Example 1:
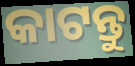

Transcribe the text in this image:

କାଟନ୍ତୁ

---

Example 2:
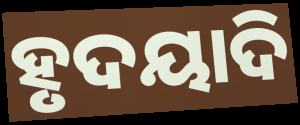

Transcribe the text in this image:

ହୃଦୟାଦି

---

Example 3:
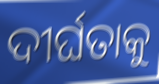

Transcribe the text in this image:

ଦୀର୍ଘତାକୁ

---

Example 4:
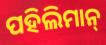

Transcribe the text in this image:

ପହିଲିମାନ୍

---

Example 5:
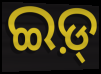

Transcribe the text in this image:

ଇଡ଼୍